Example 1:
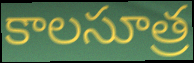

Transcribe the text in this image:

కాలసూత్ర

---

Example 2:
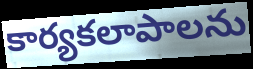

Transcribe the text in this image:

కార్యకలాపాలను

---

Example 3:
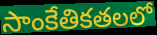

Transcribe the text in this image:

సాంకేతికతలలో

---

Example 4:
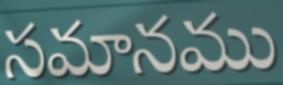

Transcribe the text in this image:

సమానము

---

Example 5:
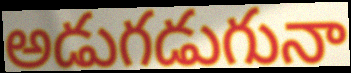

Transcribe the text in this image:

అడుగడుగునా